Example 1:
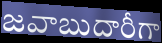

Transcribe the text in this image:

జవాబుదారీగా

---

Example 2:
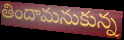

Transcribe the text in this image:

తిందామనుకున్న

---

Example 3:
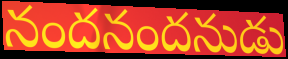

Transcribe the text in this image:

నందనందనుడు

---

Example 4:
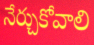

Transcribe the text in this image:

నేర్చుకోవాలి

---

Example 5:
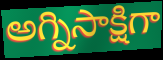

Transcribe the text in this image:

అగ్నిసాక్షిగా